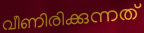
വീണിരിക്കുന്നത്